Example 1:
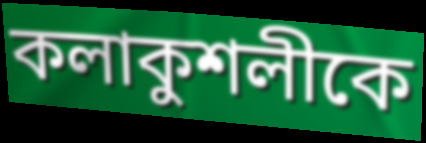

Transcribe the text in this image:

কলাকুশলীকে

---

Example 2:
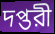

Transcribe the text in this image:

দপ্তরী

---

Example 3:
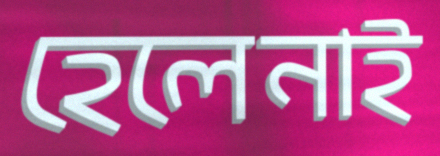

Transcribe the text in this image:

হেলেনাই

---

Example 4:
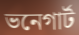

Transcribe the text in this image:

ভনেগার্ট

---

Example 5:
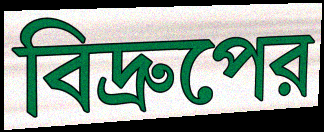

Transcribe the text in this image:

বিদ্রুপের